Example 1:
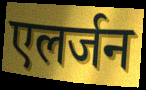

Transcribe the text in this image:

एलर्जन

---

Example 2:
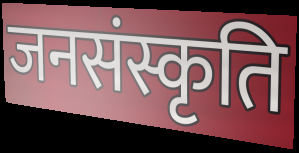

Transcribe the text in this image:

जनसंस्कृति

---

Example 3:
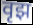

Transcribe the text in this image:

वृझ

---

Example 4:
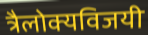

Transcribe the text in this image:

त्रैलोक्यविजयी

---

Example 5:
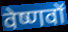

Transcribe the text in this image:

वेष्णवों